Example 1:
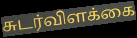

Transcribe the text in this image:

சுடர்விளக்கை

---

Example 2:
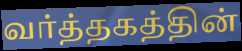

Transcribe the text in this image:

வர்த்தகத்தின்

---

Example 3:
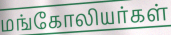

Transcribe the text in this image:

மங்கோலியர்கள்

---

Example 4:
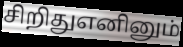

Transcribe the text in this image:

சிறிதுஎனினும்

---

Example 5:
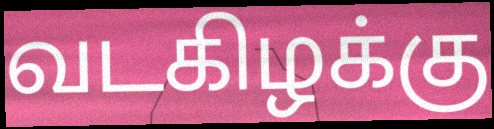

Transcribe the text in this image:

வடகிழக்கு